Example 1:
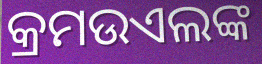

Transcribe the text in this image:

କ୍ରମଉଏଲଙ୍କ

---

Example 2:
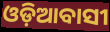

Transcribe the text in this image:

ଓଡ଼ିଆବାସୀ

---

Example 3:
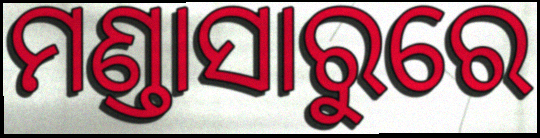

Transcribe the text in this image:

ମଣ୍ଡାସାରୁରେ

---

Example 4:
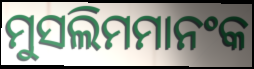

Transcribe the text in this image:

ମୁସଲିମମାନଂକ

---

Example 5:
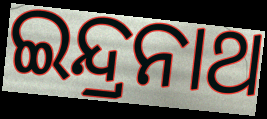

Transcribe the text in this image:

ଇନ୍ଦ୍ରନାଥ